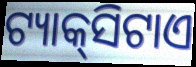
ଟ୍ୟାକ୍‌ସିଟାଏ